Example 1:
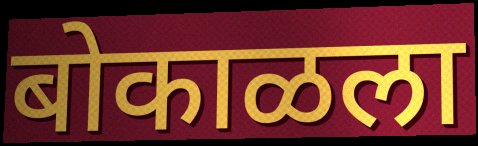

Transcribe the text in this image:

बोकाळला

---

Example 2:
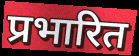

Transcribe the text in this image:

प्रभारित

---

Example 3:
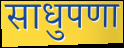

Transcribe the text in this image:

साधुपणा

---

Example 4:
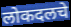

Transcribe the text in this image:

लोकदलचे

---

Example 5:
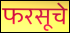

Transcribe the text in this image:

फरसूचे